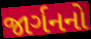
જાર્ગનનો